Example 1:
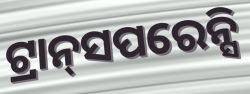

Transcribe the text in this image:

ଟ୍ରାନ୍‌ସପରେନ୍ସି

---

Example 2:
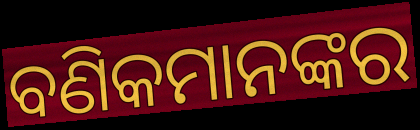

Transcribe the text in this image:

ବଣିକମାନଙ୍କର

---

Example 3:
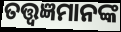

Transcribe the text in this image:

ତତ୍ତ୍ୱଜ୍ଞମାନଙ୍କ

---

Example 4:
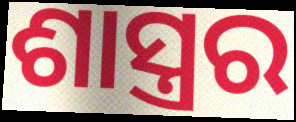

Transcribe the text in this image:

ଶାସ୍ତ୍ରର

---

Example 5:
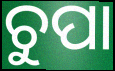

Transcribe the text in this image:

ଚୁପା